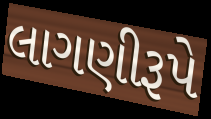
લાગણીરૂપે